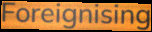
Foreignising